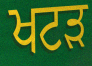
ਖਟੜ